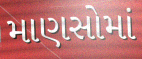
માણસોમાં